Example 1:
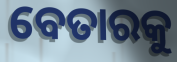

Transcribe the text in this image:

ବେତାରକୁ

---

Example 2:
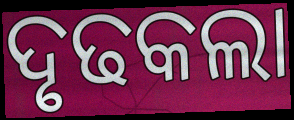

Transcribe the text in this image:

ଦୃଢକଲା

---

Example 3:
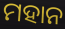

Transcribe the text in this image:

ମହାନ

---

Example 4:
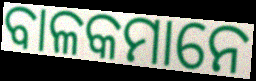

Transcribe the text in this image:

ବାଳକମାନେ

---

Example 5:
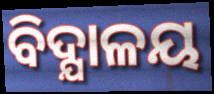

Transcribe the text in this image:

ବିଦ୍ଯାଳୟ